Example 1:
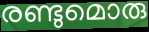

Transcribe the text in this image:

രണ്ടുമൊരു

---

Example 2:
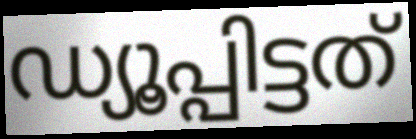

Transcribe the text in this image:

ഡ്യൂപ്പിട്ടത്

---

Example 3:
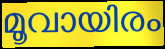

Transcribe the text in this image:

മൂവായിരം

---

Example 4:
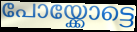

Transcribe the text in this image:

പോയ്ക്കോട്ടെ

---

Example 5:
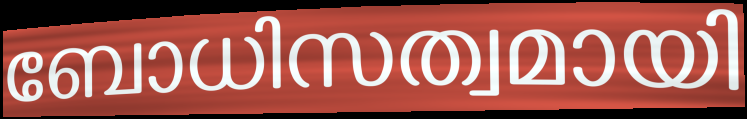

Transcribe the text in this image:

ബോധിസത്വമായി